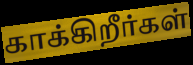
காக்கிறீர்கள்